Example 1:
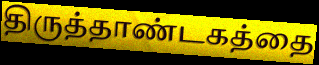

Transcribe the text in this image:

திருத்தாண்டகத்தை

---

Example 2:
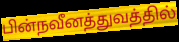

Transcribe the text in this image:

பின்நவீனத்துவத்தில்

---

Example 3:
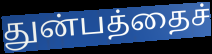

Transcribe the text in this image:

துன்பத்தைச்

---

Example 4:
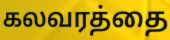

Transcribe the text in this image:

கலவரத்தை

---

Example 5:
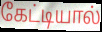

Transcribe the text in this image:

கேட்டியால்